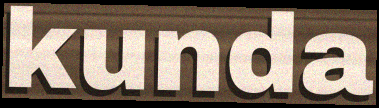
kunda